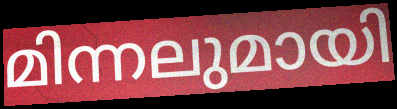
മിന്നലുമായി